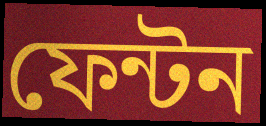
ফেন্টন